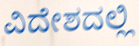
ವಿದೇಶದಲ್ಲಿ